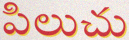
పిలుచు